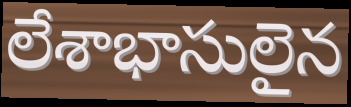
లేశాభాసులైన